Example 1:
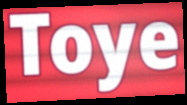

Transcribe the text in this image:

Toye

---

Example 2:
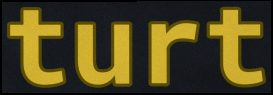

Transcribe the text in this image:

turt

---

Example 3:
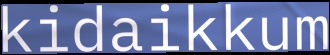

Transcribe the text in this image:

kidaikkum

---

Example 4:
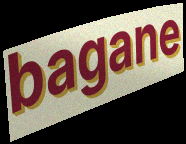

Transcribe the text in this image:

bagane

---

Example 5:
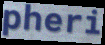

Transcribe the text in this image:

pheri